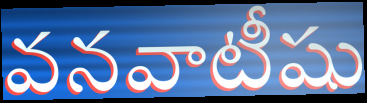
వనవాటీషు